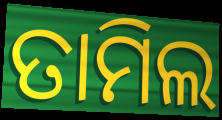
ତାମିଲ